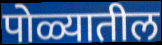
पोळ्यातील